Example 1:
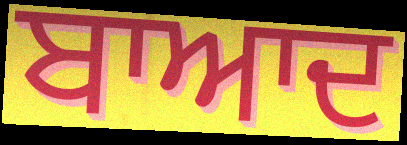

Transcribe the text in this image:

ਬਾਆਦ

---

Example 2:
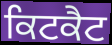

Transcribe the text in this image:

ਕਿਟਕੈਟ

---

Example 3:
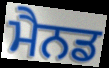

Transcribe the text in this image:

ਮੈਨਡ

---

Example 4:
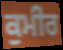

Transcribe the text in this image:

ਕੁਮੀਰ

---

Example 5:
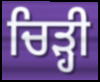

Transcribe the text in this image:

ਚਿੜ੍ਹੀ